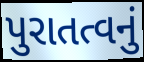
પુરાતત્વનું